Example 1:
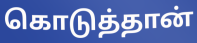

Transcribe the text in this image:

கொடுத்தான்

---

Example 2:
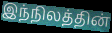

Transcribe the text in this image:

இந்நிலத்தின்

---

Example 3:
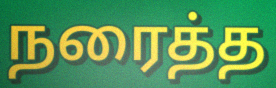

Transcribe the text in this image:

நரைத்த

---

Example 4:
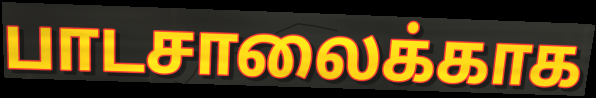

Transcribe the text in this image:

பாடசாலைக்காக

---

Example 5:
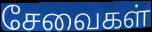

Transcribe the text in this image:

சேவைகள்